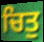
ਚਿਤੁ